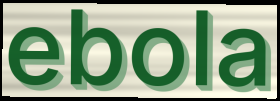
ebola